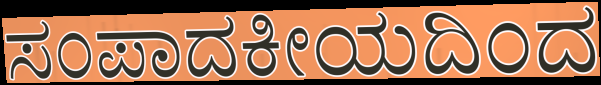
ಸಂಪಾದಕೀಯದಿಂದ